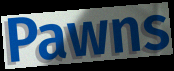
Pawns